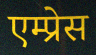
एम्प्रेस